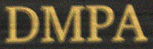
DMPA